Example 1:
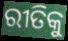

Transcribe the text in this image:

ରୀତିକୁ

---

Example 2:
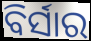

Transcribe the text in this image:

ବିର୍ସାର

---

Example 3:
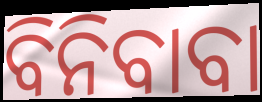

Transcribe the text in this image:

ବିନିବାବା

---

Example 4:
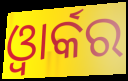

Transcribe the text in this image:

ଓ୍ବାର୍କର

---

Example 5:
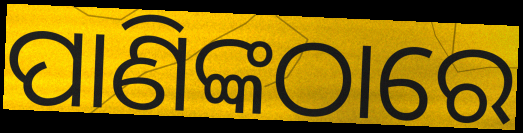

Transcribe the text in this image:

ପାଣିଙ୍କଠାରେ